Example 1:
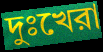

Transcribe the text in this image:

দুঃখেরা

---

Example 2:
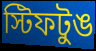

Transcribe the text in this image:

স্টিফটুঙ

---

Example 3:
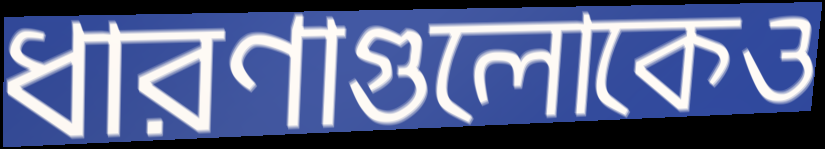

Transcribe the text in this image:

ধারণাগুলোকেও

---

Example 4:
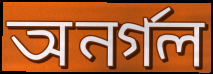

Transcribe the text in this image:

অনর্গল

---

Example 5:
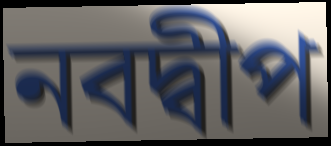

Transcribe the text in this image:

নবদ্বীপ